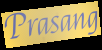
Prasang